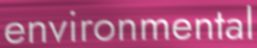
environmental